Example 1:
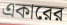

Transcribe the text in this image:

একারের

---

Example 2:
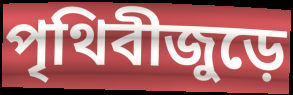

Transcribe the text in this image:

পৃথিবীজুড়ে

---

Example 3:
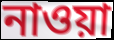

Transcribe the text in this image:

নাওয়া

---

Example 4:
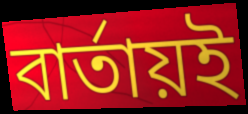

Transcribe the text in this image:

বার্তায়ই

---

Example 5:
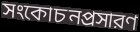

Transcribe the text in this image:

সংকোচনপ্রসারণ